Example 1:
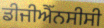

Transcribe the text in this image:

ਡੀਜੀਐੱਨਸੀਸੀ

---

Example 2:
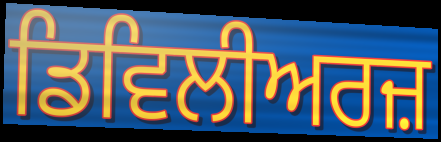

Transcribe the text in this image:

ਡਿਵਿਲੀਅਰਜ਼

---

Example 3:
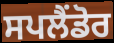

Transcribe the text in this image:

ਸਪਲੈਂਡੋਰ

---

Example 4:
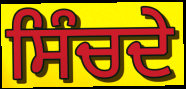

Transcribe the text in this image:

ਸਿੰਚਦੇ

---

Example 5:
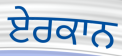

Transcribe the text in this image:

ਏਰਕਾਨ